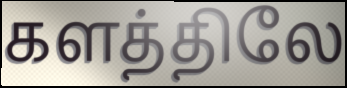
களத்திலே